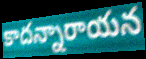
కాదన్నారాయన